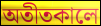
অতীতকালে